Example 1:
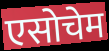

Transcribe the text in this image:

एसोचेम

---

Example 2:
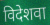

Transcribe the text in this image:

विदेशवा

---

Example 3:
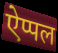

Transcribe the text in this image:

ऐप्पल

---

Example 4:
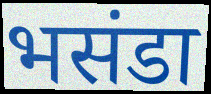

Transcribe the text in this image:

भसंडा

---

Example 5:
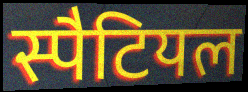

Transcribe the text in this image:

स्पैटियल